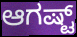
ಆಗಷ್ಟ್